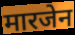
मारजेन